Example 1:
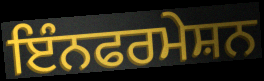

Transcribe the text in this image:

ਇੰਨਫਰਮੇਸ਼ਨ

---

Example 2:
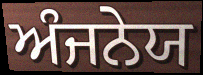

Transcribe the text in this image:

ਅੰਜਨੇਯ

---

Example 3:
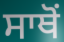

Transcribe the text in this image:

ਸਾਥੋਂ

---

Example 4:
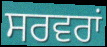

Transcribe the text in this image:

ਸਰਵਰਾਂ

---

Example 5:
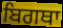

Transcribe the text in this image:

ਬਿਗਥਾ